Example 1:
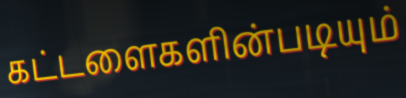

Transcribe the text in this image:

கட்டளைகளின்படியும்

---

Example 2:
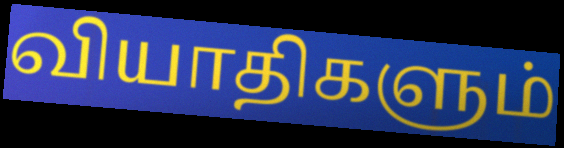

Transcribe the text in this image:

வியாதிகளும்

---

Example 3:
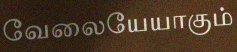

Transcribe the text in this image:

வேலையேயாகும்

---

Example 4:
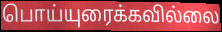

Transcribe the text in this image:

பொய்யுரைக்கவில்லை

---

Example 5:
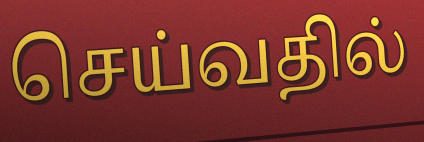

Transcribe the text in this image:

செய்வதில்